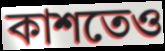
কাশতেও